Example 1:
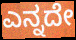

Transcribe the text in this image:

ಎನ್ನದೇ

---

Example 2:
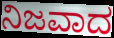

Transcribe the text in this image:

ನಿಜವಾದ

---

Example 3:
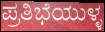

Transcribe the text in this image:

ಪ್ರತಿಭೆಯುಳ್ಳ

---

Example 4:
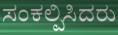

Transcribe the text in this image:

ಸಂಕಲ್ಪಿಸಿದರು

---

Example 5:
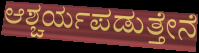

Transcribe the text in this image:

ಆಶ್ಚರ್ಯಪಡುತ್ತೇನೆ